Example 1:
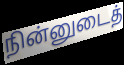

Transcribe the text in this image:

நின்னுடைத்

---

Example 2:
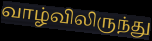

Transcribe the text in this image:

வாழ்விலிருந்து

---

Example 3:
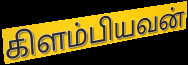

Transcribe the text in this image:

கிளம்பியவன்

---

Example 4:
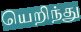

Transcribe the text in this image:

யெறிந்து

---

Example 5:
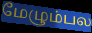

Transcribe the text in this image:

மேழும்பல